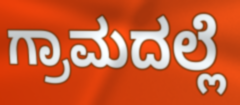
ಗ್ರಾಮದಲ್ಲೆ